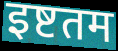
इष्टतम